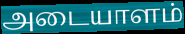
அடையாளம்